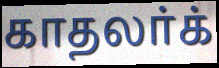
காதலர்க்